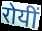
रोयीं